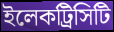
ইলেকট্রিসিটি